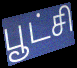
பூட்சி